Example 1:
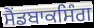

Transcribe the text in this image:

ਸੈਂਡਬਾਕਸਿੰਗ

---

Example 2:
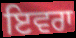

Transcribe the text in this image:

ਇਵਰਾ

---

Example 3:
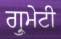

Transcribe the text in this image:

ਗ੍ਰੁਮੇਟੀ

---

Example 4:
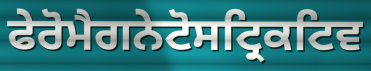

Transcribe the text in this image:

ਫੇਰੋਮੈਗਨੇਟੋਸਟ੍ਰਿਕਟਿਵ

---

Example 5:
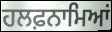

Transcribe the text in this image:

ਹਲਫ਼ਨਾਮਿਆਂ